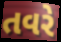
તવરે